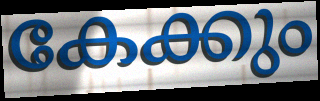
കേക്കും